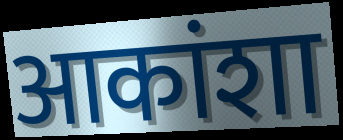
आकांशा